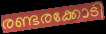
രണ്ടരക്കോടി